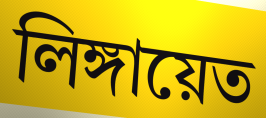
লিঙ্গায়েত